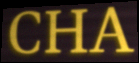
CHA